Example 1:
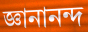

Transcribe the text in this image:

জ্ঞানানন্দ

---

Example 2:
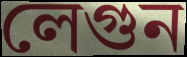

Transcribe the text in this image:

লেগুন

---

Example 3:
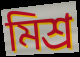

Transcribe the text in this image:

মিশ্র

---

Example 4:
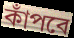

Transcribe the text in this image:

কাঁপবে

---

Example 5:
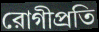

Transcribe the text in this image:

রোগীপ্রতি